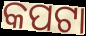
କପଟା